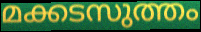
മക്കടസുത്തം